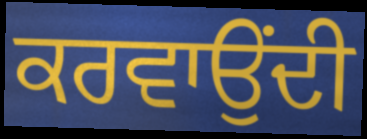
ਕਰਵਾਉਂਦੀ